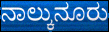
ನಾಲ್ಕುನೂರು